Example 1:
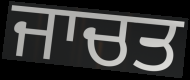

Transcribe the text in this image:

ਜਾਚਤ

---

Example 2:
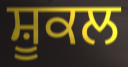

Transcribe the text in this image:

ਸ਼ੂਕਲ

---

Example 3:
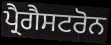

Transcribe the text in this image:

ਪ੍ਰੈਗੈਸਟਰੋਨ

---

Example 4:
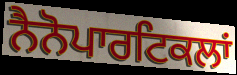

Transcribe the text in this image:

ਨੈਨੋਪਾਰਟਿਕਲਾਂ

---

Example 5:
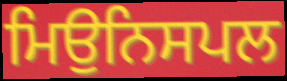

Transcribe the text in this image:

ਮਿਉਨਿਸਪਲ